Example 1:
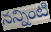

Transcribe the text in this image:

నన్నింటి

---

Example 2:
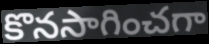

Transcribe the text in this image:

కొనసాగించగా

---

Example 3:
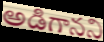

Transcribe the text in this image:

అడిగానని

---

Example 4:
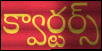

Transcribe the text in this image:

క్వార్టర్స్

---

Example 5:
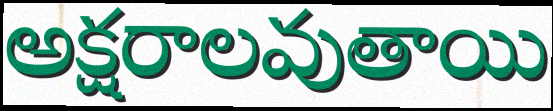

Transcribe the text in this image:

అక్షరాలవుతాయి